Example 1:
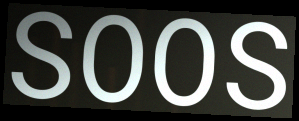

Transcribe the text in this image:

SOOS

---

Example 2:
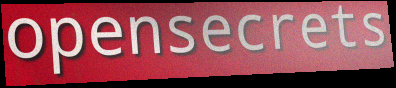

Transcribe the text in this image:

opensecrets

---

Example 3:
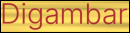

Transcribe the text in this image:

Digambar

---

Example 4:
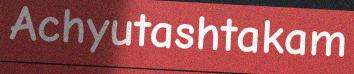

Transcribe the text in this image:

Achyutashtakam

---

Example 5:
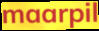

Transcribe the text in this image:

maarpil